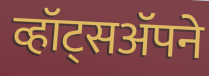
व्हॉट्सॲपने